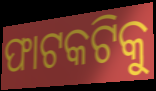
ଫାଟକଟିକୁ